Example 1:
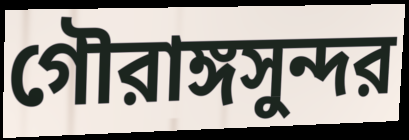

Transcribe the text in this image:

গৌরাঙ্গসুন্দর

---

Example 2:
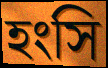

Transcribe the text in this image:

হংসি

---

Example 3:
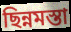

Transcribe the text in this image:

ছিন্নমস্তা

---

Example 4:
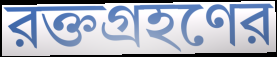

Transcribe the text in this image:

রক্তগ্রহণের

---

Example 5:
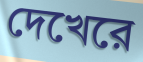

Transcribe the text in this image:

দেখেরে